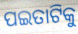
ପଇତାଟିକୁ